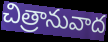
చిత్రానువాద